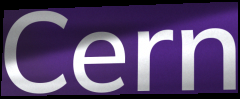
Cern